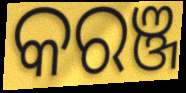
କରଞ୍ଜ